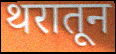
थरातून